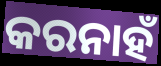
କରନାହଁ